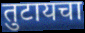
तुटायचा